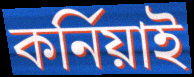
কর্নিয়াই